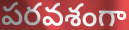
పరవశంగా